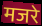
मजरे